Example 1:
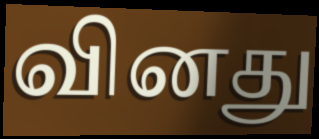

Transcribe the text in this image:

வினது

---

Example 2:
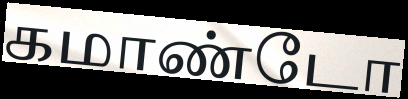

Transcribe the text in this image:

கமாண்டோ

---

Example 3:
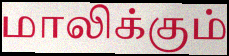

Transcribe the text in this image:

மாலிக்கும்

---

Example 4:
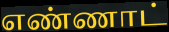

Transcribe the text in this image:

எண்ணாட்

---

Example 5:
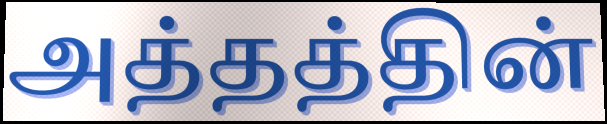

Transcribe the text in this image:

அத்தத்தின்